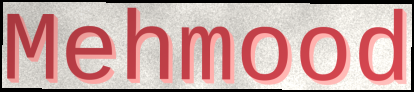
Mehmood